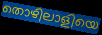
തൊഴിലാളിയെ